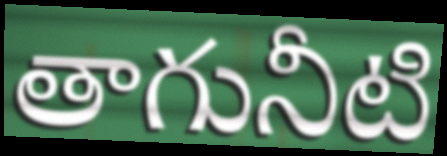
తాగునీటి